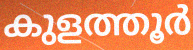
കുളത്തൂർ